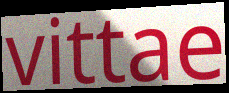
vittae